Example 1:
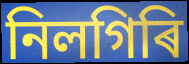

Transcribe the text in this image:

নিলগিৰি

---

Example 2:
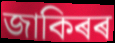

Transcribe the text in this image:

জাকিৰৰ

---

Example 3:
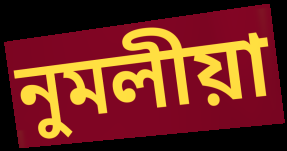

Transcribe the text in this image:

নুমলীয়া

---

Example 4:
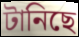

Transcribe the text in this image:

টানিছে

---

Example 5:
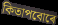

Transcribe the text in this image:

কিতাপবোৰে